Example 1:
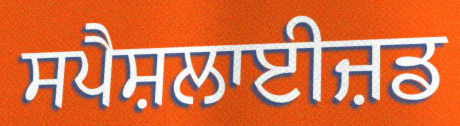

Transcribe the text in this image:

ਸਪੈਸ਼ਲਾਈਜ਼ਡ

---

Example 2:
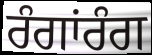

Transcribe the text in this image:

ਰੰਗਾਂਰੰਗ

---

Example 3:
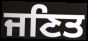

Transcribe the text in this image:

ਜਣਿਤ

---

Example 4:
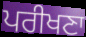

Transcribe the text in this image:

ਪਰੀਖਣਾ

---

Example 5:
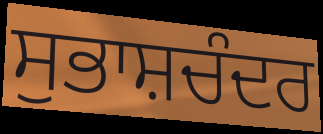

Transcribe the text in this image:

ਸੁਭਾਸ਼ਚੰਦਰ